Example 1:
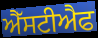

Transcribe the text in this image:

ਐੱਸਟੀਐਫ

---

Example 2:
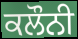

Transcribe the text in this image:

ਕਲੌਨੀ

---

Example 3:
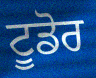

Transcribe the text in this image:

ਟੂਡੋਰ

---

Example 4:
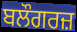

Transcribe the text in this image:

ਬਲੌਗਰਜ਼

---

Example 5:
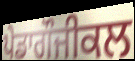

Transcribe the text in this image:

ਪੇਡਾਗੌਜੀਕਲ